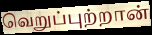
வெறுப்புற்றான்